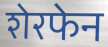
शेरफेन